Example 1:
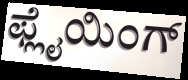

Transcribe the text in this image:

ಫ್ಲೈಯಿಂಗ್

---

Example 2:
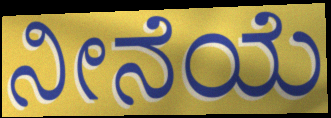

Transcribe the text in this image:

ನೀನೆಯೆ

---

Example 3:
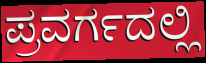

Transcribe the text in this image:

ಪ್ರವರ್ಗದಲ್ಲಿ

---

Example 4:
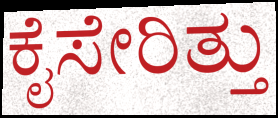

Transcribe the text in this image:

ಕೈಸೇರಿತ್ತು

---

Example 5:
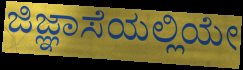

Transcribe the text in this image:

ಜಿಜ್ಞಾಸೆಯಲ್ಲಿಯೇ